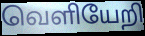
வெளியேறி